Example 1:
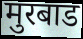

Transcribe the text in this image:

मुरबाड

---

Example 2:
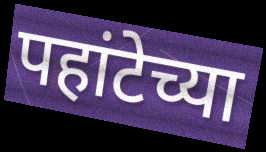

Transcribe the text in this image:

पहांटेच्या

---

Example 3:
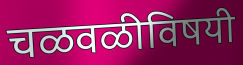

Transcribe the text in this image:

चळवळीविषयी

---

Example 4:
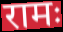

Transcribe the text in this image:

रामः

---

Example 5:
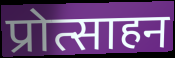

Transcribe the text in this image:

प्रोत्साहन